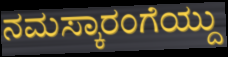
ನಮಸ್ಕಾರಂಗೆಯ್ದು